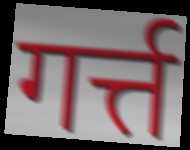
गर्त्त